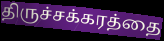
திருச்சக்கரத்தை